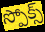
స్పోక్స్